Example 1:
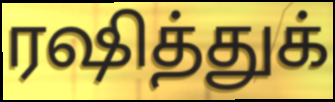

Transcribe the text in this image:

ரஷித்துக்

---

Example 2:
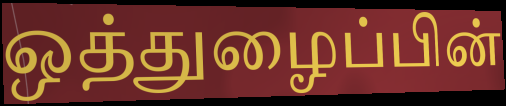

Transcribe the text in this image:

ஒத்துழைப்பின்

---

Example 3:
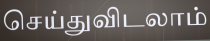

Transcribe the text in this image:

செய்துவிடலாம்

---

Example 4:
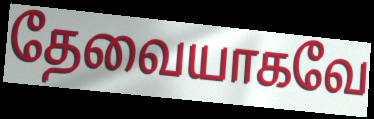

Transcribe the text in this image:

தேவையாகவே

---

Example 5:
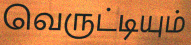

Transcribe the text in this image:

வெருட்டியும்